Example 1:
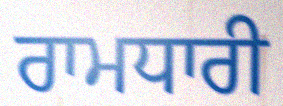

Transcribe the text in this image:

ਰਾਮਧਾਰੀ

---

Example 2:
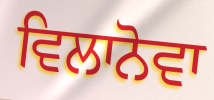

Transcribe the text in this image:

ਵਿਲਾਨੋਵਾ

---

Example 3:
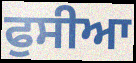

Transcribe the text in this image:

ਫੁਸੀਆ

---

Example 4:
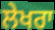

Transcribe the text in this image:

ਲੇਖਰਾ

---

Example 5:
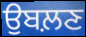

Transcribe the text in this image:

ਉਬਲ਼ਣ